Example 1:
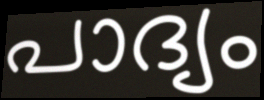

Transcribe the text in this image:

പാദ്യം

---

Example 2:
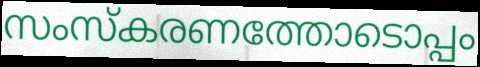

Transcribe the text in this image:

സംസ്കരണത്തോടൊപ്പം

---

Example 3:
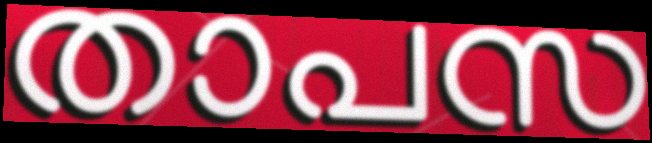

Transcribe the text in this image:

താപസ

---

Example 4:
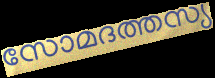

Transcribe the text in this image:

സോമദത്തസ്യ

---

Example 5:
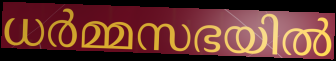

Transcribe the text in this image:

ധർമ്മസഭയിൽ